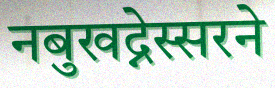
नबुखद्नेस्सरने